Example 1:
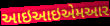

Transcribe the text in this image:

આઇઆઇએમઆર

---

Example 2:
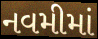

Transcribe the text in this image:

નવમીમાં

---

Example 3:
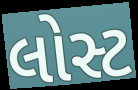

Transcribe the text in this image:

લોસ્ટ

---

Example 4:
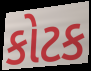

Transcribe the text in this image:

કોટક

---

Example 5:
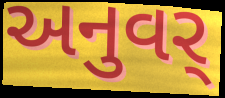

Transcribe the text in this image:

અનુવર્